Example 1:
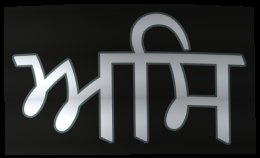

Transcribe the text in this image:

ਅਸਿ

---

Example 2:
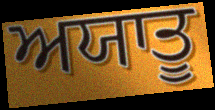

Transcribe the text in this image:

ਅਯਾਤੂ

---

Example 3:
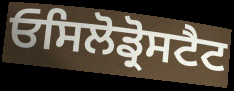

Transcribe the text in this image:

ਓਸਿਲੋਡ੍ਰੋਸਟੈਟ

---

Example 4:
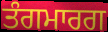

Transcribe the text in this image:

ਤੰਗਮਾਰਗ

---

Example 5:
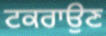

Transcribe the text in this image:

ਟਕਰਾਉਣ